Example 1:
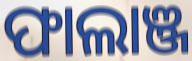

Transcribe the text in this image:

ଫାଲାଞ୍ଜ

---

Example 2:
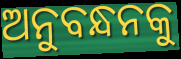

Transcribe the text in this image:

ଅନୁବନ୍ଧନକୁ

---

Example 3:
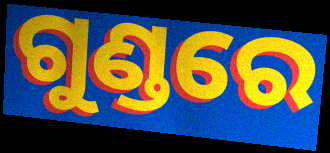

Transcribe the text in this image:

ଗୁଣ୍ଡରେ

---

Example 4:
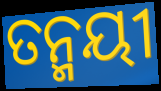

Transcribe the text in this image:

ତନ୍ମୟୀ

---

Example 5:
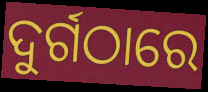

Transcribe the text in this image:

ଦୁର୍ଗଠାରେ